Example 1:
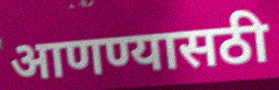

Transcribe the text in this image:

आणण्यासठी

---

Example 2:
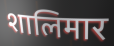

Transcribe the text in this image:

शालिमार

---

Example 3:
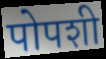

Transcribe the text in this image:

पोपशी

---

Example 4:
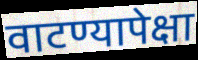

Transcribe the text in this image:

वाटण्यापेक्षा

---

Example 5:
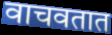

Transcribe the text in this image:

वाचवतात